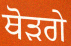
ਥੋੜਗੇ